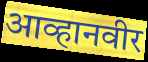
आव्हानवीर